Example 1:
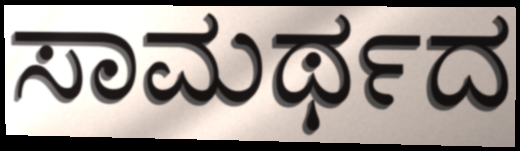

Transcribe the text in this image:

ಸಾಮರ್ಥದ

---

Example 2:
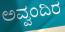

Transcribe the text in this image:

ಅವ್ವಂದಿರ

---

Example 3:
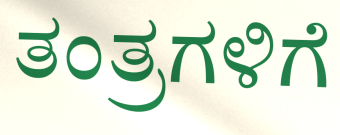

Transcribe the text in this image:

ತಂತ್ರಗಳಿಗೆ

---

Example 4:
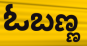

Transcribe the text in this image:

ಓಬಣ್ಣ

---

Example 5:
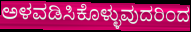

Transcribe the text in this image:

ಅಳವಡಿಸಿಕೊಳ್ಳುವುದರಿಂದ